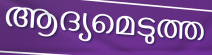
ആദ്യമെടുത്ത